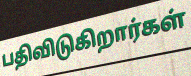
பதிவிடுகிறார்கள்